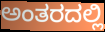
ಅಂತರದಲ್ಲಿ